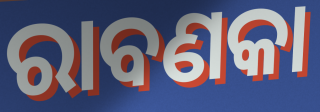
ରାବଣକା